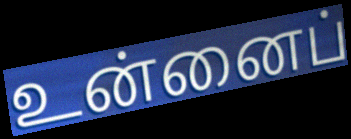
உன்னைப்